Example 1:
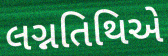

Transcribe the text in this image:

લગ્નતિથિએ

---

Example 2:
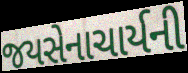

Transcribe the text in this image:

જયસેનાચાર્યની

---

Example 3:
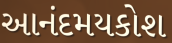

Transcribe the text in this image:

આનંદમયકોશ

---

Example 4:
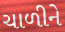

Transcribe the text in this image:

ચાળીને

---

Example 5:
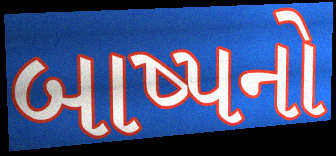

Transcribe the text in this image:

બાષ્પનો